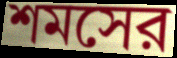
শমসের